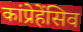
कांप्रेहेंसिव